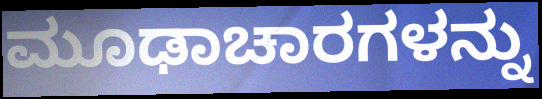
ಮೂಢಾಚಾರಗಳನ್ನು